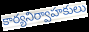
కార్యనిర్వాహకులు